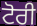
ਟੋਰੀ